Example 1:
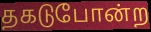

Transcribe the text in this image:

தகடுபோன்ற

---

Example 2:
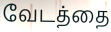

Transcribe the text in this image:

வேடத்தை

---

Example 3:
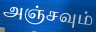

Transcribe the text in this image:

அஞ்சவும்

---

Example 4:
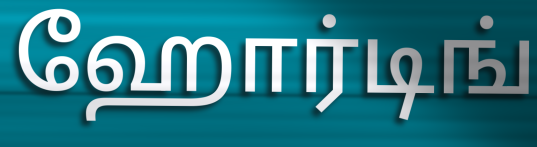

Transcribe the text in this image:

ஹோர்டிங்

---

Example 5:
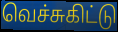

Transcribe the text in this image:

வெச்சுகிட்டு